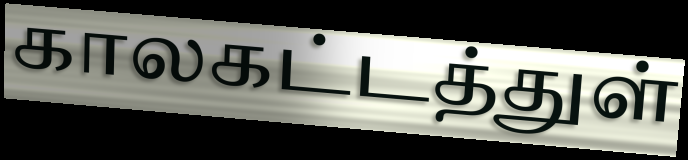
காலகட்டத்துள்